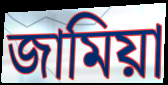
জামিয়া